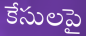
కేసులపై